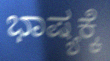
ಭಾಷ್ಯಕ್ಕೆ